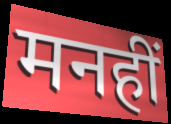
मनहीं